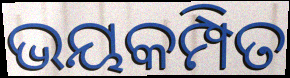
ଭୟକମ୍ପିତ